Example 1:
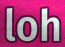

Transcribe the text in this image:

loh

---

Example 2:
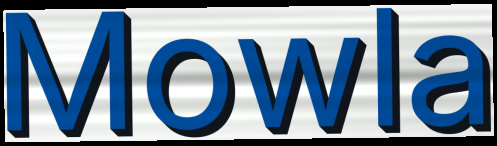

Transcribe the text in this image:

Mowla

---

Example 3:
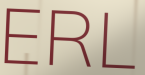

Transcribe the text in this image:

ERL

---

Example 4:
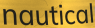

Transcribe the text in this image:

nautical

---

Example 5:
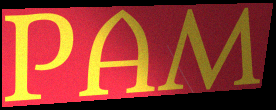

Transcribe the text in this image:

PAM